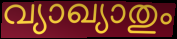
വ്യാഖ്യാതും